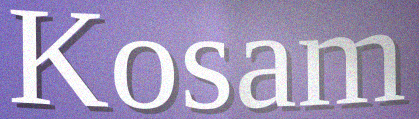
Kosam